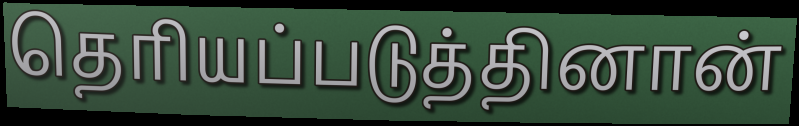
தெரியப்படுத்தினான்